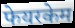
फेयरकेम